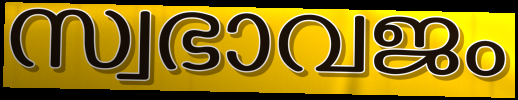
സ്വഭാവജം